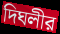
দিঘলীর